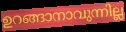
ഉറങ്ങാനാവുന്നില്ല